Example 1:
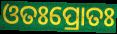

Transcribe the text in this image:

ଓତଃପ୍ରୋତଃ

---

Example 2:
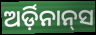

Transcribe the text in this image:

ଅର୍ଡ଼ିନାନ୍‌ସ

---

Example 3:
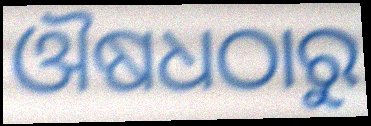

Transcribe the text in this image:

ଔଷଧଠାରୁ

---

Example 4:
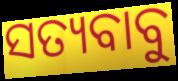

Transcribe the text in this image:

ସତ୍ୟବାବୁ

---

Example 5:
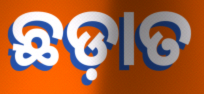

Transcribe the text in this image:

ଛଡ଼ାତ